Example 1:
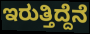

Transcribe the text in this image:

ಇರುತ್ತಿದ್ದೆನೆ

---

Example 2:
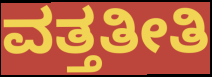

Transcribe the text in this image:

ವತ್ತತೀತಿ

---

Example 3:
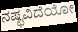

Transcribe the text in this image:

ನಷ್ಟವಿದೆಯೋ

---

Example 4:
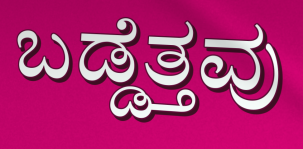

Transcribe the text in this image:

ಬಡ್ಡೆತ್ತವು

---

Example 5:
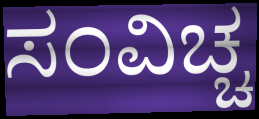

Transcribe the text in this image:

ಸಂವಿಚ್ಚ